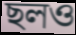
ছলও